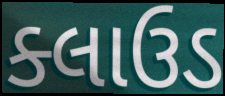
ક્લાઉડ